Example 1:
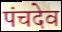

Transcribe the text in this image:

पंचदेव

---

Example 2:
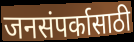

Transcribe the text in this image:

जनसंपर्कासाठी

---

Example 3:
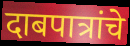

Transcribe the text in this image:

दाबपात्रांचे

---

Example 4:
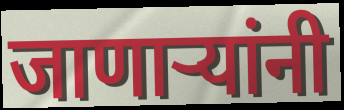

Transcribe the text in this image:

जाणाऱ्यांनी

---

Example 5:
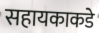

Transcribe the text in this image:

सहायकाकडे